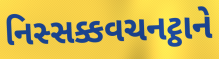
નિસ્સક્કવચનટ્ઠાને